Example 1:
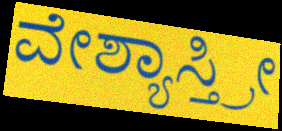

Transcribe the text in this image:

ವೇಶ್ಯಾಸ್ತ್ರೀ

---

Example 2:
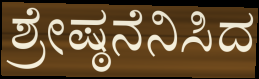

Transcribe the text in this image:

ಶ್ರೇಷ್ಠನೆನಿಸಿದ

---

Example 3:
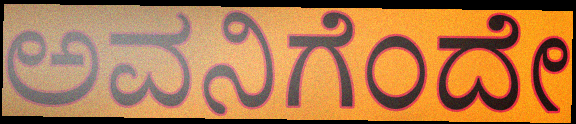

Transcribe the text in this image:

ಅವನಿಗೆಂದೇ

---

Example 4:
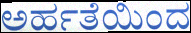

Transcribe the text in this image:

ಅರ್ಹತೆಯಿಂದ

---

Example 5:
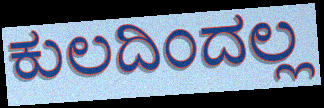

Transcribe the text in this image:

ಕುಲದಿಂದಲ್ಲ